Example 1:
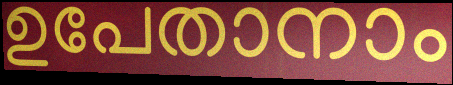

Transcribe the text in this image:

ഉപേതാനാം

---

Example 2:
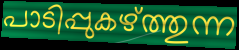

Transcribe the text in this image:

പാടിപ്പുകഴ്ത്തുന്ന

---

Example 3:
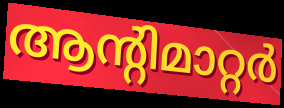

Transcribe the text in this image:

ആന്റിമാറ്റർ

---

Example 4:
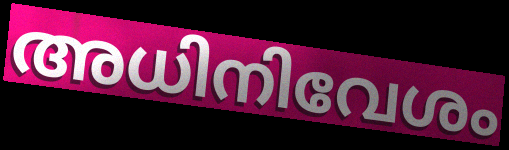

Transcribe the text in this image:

അധിനിവേശം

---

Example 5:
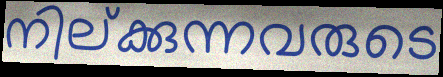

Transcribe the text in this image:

നില്ക്കുന്നവരുടെ